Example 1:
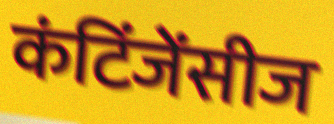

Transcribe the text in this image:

कंटिंजेंसीज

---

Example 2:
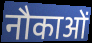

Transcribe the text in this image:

नौकाओं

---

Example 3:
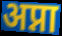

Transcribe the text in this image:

अप्ना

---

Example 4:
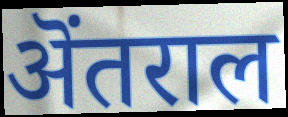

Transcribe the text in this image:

ऄंतराल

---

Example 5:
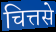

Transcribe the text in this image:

चित्तसे